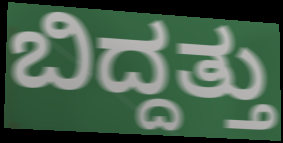
ಬಿದ್ದತ್ತು